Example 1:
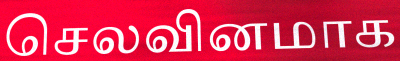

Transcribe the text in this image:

செலவினமாக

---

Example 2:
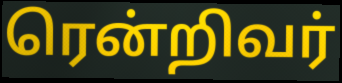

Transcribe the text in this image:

ரென்றிவர்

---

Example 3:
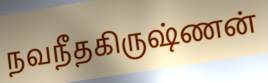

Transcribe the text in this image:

நவநீதகிருஷ்ணன்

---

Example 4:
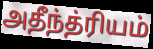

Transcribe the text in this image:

அதீந்த்ரியம்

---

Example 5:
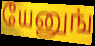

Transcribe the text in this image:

யேனுங்